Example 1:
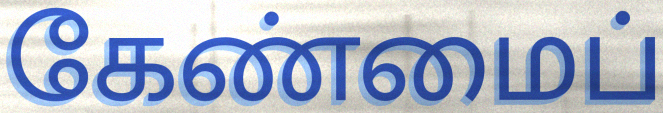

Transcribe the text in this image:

கேண்மைப்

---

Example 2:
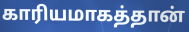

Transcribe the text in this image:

காரியமாகத்தான்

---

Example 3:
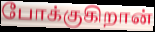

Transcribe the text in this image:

போக்குகிறான்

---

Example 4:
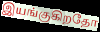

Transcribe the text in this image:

இயங்குகிறதோ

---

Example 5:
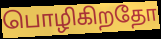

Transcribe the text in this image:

பொழிகிறதோ